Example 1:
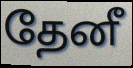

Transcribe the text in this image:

தேனீ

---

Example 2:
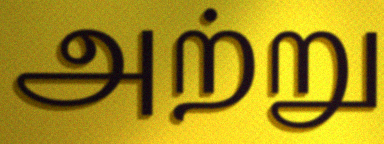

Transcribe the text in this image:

அற்று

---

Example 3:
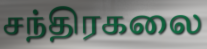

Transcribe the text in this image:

சந்திரகலை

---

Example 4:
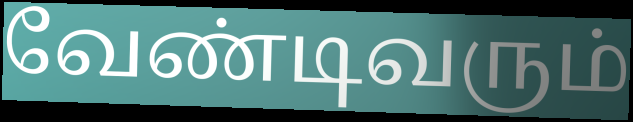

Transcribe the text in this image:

வேண்டிவரும்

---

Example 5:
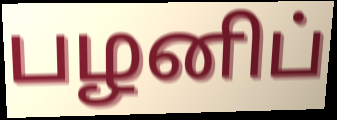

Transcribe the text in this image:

பழனிப்